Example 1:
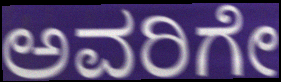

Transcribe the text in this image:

ಅವರಿಗೇ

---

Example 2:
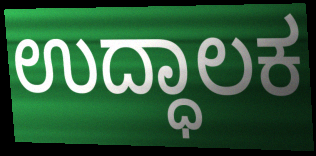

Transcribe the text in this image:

ಉದ್ಧಾಲಕ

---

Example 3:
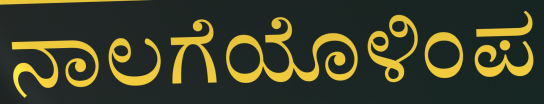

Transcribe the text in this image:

ನಾಲಗೆಯೊಳಿಂಪ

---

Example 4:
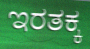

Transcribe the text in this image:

ಇರತಕ್ಕ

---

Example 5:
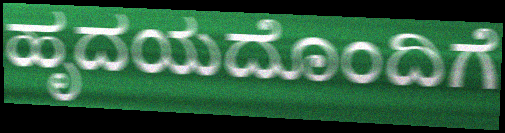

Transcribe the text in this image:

ಹೃದಯದೊಂದಿಗೆ